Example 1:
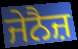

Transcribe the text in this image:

ਜੇਨੈਜ਼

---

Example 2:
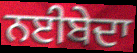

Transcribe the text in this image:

ਨਈਬੇਦਾ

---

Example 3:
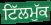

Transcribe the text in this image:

ਟਿੱਲਮੁੱਕ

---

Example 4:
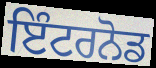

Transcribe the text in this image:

ਇੰਟਰਨੋਡ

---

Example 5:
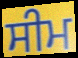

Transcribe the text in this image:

ਸੀਮ